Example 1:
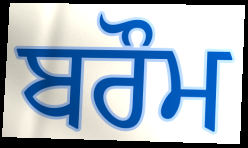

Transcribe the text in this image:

ਬਰੌਮ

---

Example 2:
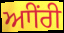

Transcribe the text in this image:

ਆੀਂਰੀ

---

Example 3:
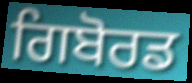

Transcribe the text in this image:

ਗਿਬੋਰਡ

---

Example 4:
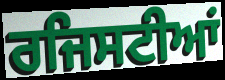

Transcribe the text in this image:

ਰਜਿਸਟੀਆਂ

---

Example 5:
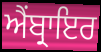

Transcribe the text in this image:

ਐਂਬ੍ਰਾਇਰ